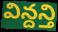
విన్దన్తి